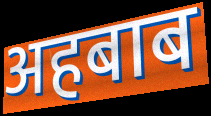
अहबाब